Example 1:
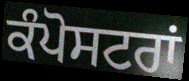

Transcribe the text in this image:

ਕੰਪੋਸਟਰਾਂ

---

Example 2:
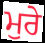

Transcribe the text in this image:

ਮੁਰੇ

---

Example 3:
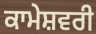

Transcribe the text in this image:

ਕਾਮੇਸ਼ਵਰੀ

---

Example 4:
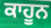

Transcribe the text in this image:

ਕਾਹੂਨ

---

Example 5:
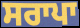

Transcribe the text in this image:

ਸਰਾਪਾ